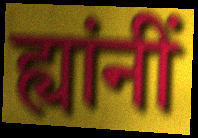
ह्यांनीं